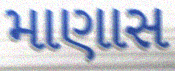
માણાસ